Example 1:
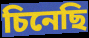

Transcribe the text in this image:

চিনেছি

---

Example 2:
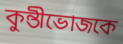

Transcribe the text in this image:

কুন্তীভোজকে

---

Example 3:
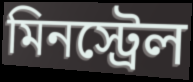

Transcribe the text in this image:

মিনস্ট্রেল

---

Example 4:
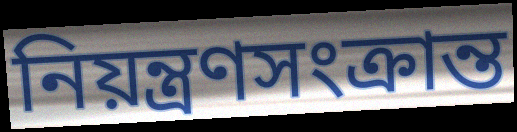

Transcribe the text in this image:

নিয়ন্ত্রণসংক্রান্ত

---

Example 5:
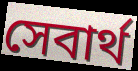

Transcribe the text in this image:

সেবার্থ